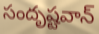
సందృష్టవాన్